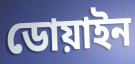
ডোয়াইন